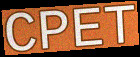
CPET